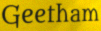
Geetham